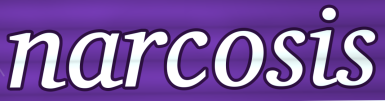
narcosis